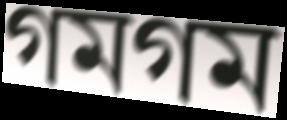
গমগম